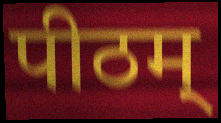
पीठम्